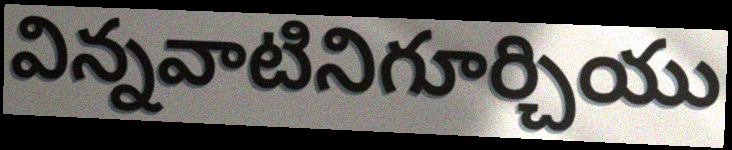
విన్నవాటినిగూర్చియు